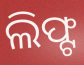
ଲିଫ୍ଟ